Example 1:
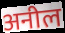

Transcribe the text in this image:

अनील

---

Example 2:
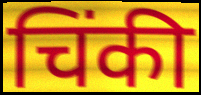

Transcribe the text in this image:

चिंकी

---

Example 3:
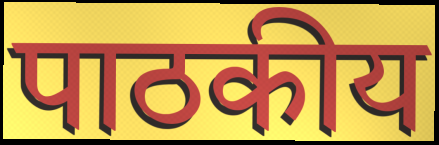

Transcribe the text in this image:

पाठकीय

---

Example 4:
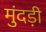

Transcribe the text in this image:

मुंदड़ी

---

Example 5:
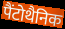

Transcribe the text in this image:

पैंटोथैनिक